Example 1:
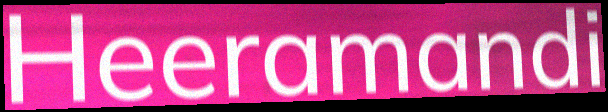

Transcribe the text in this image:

Heeramandi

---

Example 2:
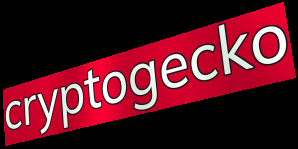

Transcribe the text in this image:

cryptogecko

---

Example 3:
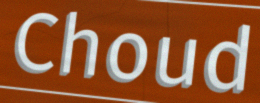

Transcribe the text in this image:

Choud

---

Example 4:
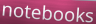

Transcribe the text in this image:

notebooks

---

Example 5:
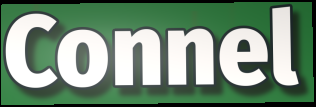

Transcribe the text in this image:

Connel